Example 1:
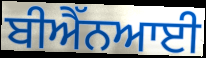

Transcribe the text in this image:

ਬੀਐੱਨਆਈ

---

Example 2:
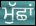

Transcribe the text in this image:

ਮੁੱਛਾਂ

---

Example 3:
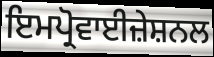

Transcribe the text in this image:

ਇਮਪ੍ਰੋਵਾਈਜ਼ੇਸ਼ਨਲ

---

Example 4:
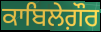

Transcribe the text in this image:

ਕਾਬਿਲੇਗ਼ੌਰ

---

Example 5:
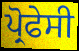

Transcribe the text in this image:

ਪ੍ਰੋਫੇਸੀ